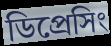
ডিপ্রেসিং